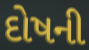
દોષની